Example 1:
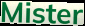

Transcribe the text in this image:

Mister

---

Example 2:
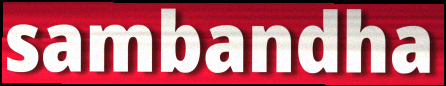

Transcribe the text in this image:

sambandha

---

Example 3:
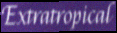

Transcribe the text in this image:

Extratropical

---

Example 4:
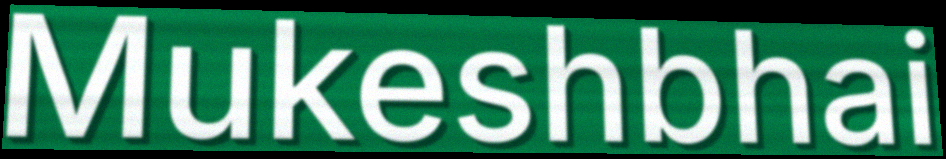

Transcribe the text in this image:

Mukeshbhai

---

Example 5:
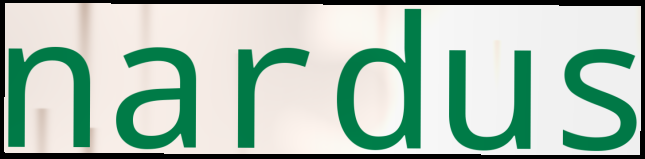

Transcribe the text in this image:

nardus